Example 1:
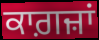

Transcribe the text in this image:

ਕਾਗ਼ਜ਼ਾਂ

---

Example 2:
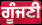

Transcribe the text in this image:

ਗੂੰਜਣੀ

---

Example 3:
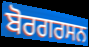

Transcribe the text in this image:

ਬੋਰਗਰਸਨ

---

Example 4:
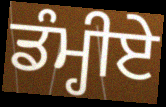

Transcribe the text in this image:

ਡੰਮ੍ਹੀਏ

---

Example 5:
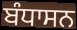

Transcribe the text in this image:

ਬੰਧਾਸਨ